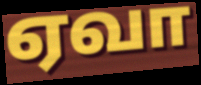
ஏவா